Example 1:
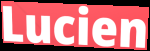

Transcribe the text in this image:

Lucien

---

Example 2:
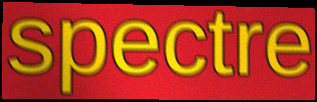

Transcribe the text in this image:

spectre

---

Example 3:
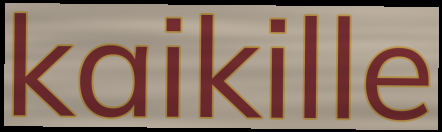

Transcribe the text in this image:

kaikille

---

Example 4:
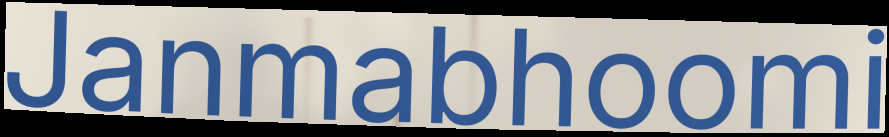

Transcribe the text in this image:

Janmabhoomi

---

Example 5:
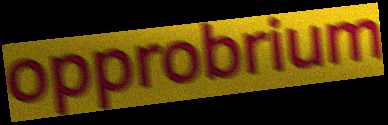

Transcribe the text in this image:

opprobrium